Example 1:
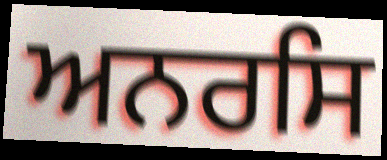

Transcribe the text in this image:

ਅਨਰਸਿ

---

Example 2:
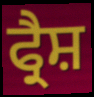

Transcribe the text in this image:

ਫ੍ਰੈਸ਼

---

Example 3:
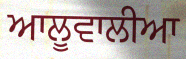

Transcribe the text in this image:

ਆਲੂਵਾਲੀਆ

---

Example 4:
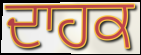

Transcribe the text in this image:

ਦਾਹਕ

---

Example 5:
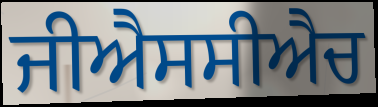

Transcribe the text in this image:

ਜੀਐਸਸੀਐਚ